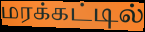
மரக்கட்டில்